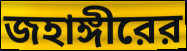
জহাঙ্গীরের